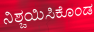
ನಿಶ್ಚಯಿಸಿಕೊಂಡ